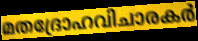
മതദ്രോഹവിചാരകർ